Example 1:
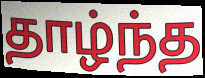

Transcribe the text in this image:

தாழ்ந்த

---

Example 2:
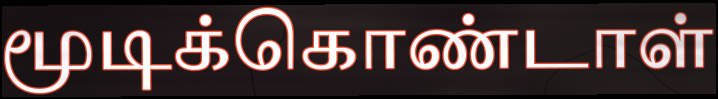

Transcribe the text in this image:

மூடிக்கொண்டாள்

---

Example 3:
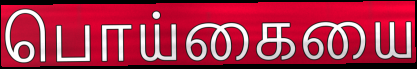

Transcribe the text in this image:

பொய்கையை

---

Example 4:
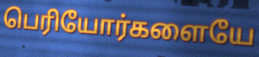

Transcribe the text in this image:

பெரியோர்களையே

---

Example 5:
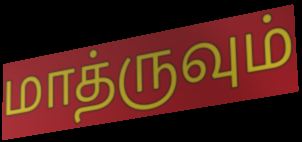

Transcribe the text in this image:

மாத்ருவும்